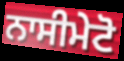
ਨਾਸੀਮੇਟੋ